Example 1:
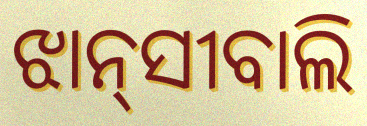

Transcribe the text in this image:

ଝାନ୍‌ସୀବାଲି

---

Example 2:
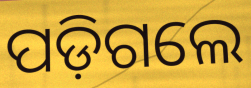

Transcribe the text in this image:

ପଡ଼ିଗଲେ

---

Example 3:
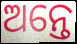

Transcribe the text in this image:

ଅନ୍ତେ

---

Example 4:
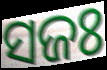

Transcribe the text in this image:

ସଜଃ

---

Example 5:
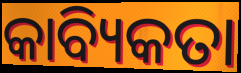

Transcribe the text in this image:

କାବ୍ୟିକତା